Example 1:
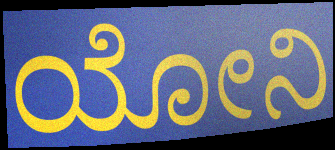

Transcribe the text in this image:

ಯೋನಿ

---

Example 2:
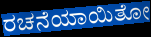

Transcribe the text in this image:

ರಚನೆಯಾಯಿತೋ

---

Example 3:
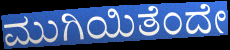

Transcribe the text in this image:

ಮುಗಿಯಿತೆಂದೇ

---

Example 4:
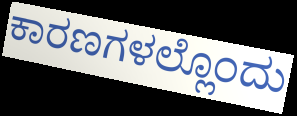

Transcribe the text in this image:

ಕಾರಣಗಳಲ್ಲೊಂದು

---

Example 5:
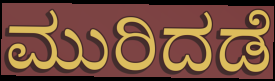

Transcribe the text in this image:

ಮುರಿದಡೆ